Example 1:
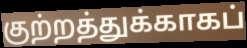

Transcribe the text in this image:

குற்றத்துக்காகப்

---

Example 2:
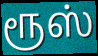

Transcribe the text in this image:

ரூஸ்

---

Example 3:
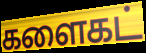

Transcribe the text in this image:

களைகட்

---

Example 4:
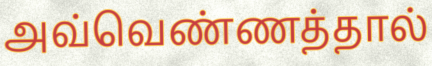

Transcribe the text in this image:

அவ்வெண்ணத்தால்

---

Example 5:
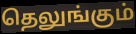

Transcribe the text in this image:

தெலுங்கும்